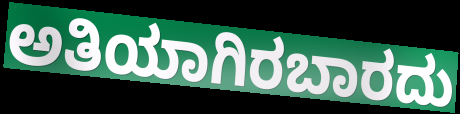
ಅತಿಯಾಗಿರಬಾರದು